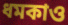
ধমকাও